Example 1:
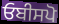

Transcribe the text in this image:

ਓਬੀਸਪੋ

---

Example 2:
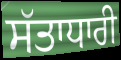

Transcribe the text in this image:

ਸੱਤਾਧਾਰੀ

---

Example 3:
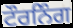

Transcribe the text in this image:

ਟੌਰਨਿੰਗ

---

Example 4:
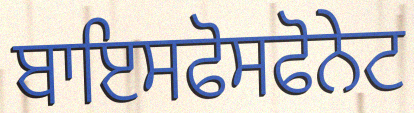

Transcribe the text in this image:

ਬਾਇਸਫੋਸਫੋਨੇਟ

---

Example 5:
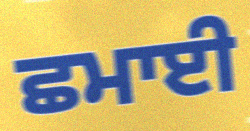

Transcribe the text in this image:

ਛਮਾਈ